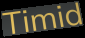
Timid